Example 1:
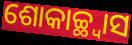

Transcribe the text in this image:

ଶୋକାଚ୍ଛ୍ୱାସ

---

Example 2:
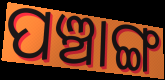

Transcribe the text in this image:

ପଞ୍ଚାଙ୍ଗ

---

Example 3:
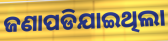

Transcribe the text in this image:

ଜଣାପଡିଯାଇଥିଲା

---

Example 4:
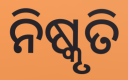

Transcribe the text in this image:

ନିଷ୍କୃତି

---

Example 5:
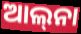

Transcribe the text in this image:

ଆଲ୍‍ନା